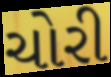
ચોરી